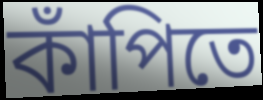
কাঁপিতে